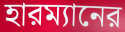
হারম্যানের